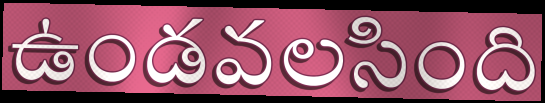
ఉండవలసింది